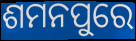
ଶମନପୁରେ